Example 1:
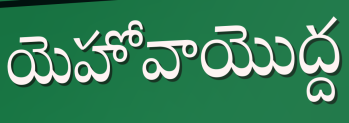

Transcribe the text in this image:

యెహోవాయొద్ద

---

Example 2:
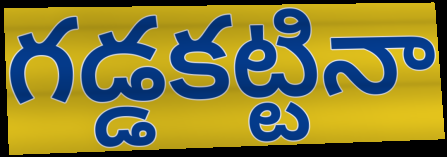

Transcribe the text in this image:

గడ్డకట్టినా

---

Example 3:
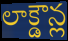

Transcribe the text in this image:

లాక్డౌన్ల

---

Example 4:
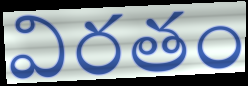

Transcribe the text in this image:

విరతం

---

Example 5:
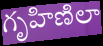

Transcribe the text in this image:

గృహిణిలా